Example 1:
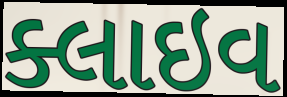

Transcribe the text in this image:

ક્લાઇવ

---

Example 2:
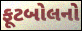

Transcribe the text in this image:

ફૂટબોલનો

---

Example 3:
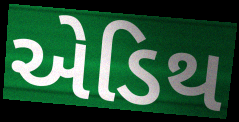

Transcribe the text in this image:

એડિથ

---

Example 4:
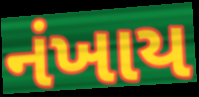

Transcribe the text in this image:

નંખાય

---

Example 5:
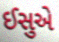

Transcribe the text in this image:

ઈસુએ